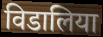
विडालिया